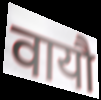
वायौ